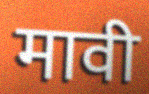
मावी